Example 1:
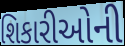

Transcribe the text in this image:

શિકારીઓની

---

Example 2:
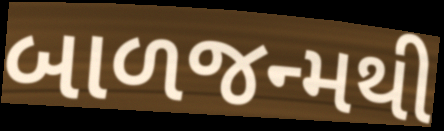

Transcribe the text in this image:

બાળજન્મથી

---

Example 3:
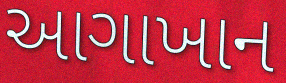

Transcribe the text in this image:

આગાખાન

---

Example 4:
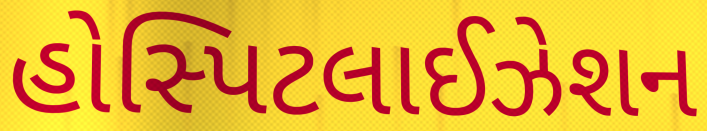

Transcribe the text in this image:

હોસ્પિટલાઈઝેશન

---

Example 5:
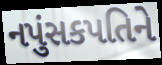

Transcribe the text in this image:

નપુંસકપતિને